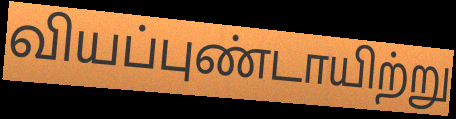
வியப்புண்டாயிற்று